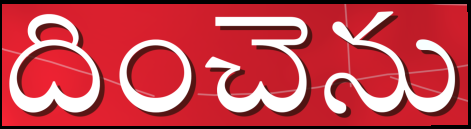
దించెను